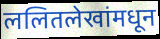
ललितलेखांमधून